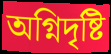
অগ্নিদৃষ্টি